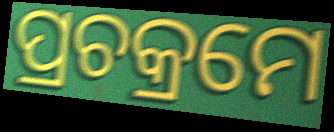
ପ୍ରଚକ୍ରମେ